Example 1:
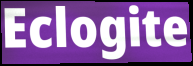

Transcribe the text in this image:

Eclogite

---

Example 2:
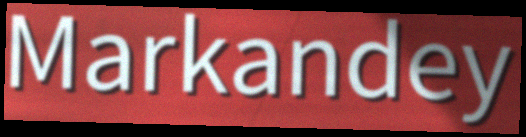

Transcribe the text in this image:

Markandey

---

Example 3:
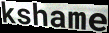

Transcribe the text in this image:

kshame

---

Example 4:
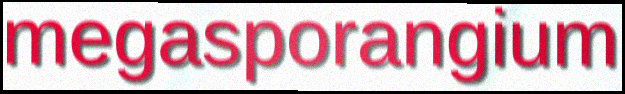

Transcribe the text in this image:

megasporangium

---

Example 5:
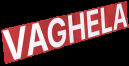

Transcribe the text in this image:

VAGHELA